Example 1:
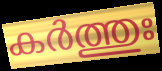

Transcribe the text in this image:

കർത്തുഃ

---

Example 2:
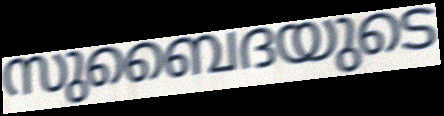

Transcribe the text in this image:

സുബൈദയുടെ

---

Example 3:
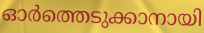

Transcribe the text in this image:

ഓർത്തെടുക്കാനായി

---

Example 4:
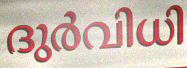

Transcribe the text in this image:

ദുർവിധി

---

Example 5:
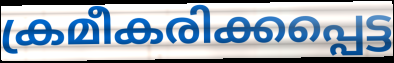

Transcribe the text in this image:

ക്രമീകരിക്കപ്പെട്ട